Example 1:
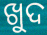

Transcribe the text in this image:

ଖୁଦ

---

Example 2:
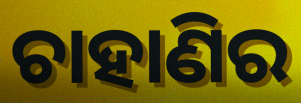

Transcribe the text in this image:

ଚାହାଣିର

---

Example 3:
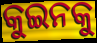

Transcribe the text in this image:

କୁଇନକୁ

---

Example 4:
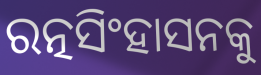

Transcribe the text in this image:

ରତ୍ନସିଂହାସନକୁ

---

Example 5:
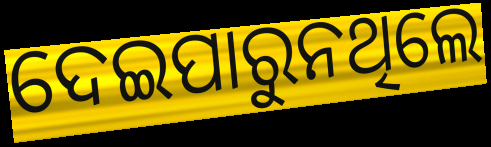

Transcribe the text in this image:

ଦେଇପାରୁନଥିଲେ